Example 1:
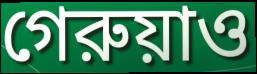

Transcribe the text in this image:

গেরুয়াও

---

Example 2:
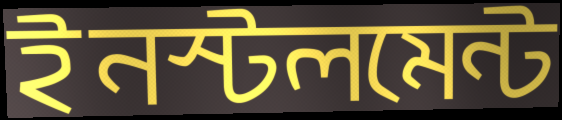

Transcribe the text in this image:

ইনস্টলমেন্ট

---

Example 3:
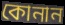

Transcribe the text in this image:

কোনান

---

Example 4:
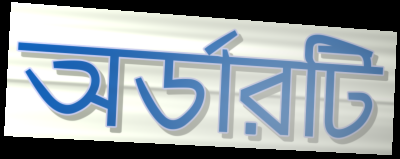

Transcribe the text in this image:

অর্ডারটি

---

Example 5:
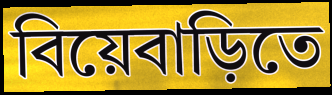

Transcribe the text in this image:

বিয়েবাড়িতে